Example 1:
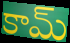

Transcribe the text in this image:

కామ్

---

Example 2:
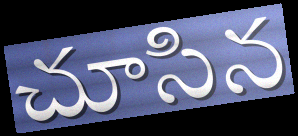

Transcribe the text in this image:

చూసిన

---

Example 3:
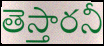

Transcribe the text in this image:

తెస్తారనీ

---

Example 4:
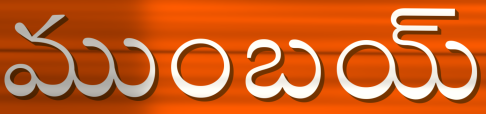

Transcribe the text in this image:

ముంబయ్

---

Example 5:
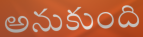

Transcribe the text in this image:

అనుకుంది